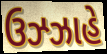
ઉઝ્ઝાહે